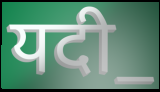
यदी॒